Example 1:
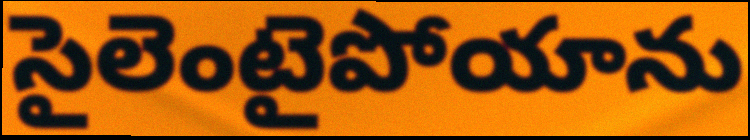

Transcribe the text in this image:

సైలెంటైపోయాను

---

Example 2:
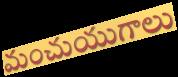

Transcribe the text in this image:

మంచుయుగాలు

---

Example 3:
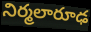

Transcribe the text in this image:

నిర్మలారూఢ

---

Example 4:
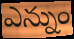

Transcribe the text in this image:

ఎన్నుం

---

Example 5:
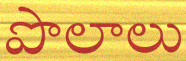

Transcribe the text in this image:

పొలాలు